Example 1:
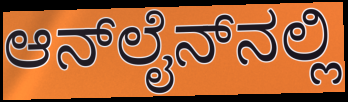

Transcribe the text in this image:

ಆನ್‌ಲೈನ್‌ನಲ್ಲಿ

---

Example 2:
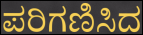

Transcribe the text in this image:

ಪರಿಗಣಿಸಿದ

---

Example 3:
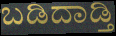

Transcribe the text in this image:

ಬಡಿದಾಡ್ತಿ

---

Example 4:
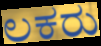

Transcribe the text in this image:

ಲಕರು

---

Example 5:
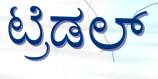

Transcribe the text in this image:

ಟ್ರೆಡಲ್